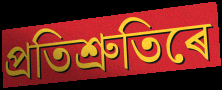
প্ৰতিশ্ৰুতিৰে